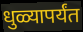
धुळ्यापर्यंत